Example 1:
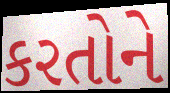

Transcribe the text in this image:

કરતોને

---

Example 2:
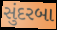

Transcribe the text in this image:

સુંદરબા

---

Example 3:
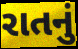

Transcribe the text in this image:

રાતનું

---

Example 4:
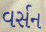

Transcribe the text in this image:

વર્સન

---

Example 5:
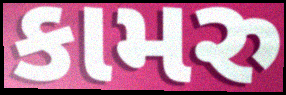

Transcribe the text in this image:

કામરુ